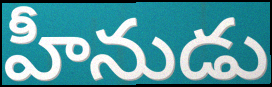
హీనుడు